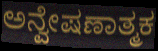
ಅನ್ವೇಷಣಾತ್ಮಕ